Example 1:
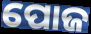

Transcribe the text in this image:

ପୋଜ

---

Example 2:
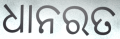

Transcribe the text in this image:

ଧାନରତ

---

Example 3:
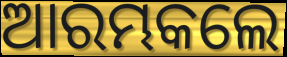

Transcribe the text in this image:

ଆରମ୍ଭକଲେ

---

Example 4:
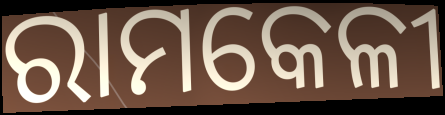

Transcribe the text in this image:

ରାମକେଳୀ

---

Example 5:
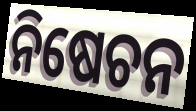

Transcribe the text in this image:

ନିଷେଚନ